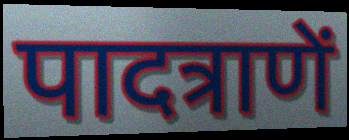
पादत्राणें